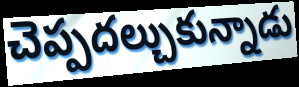
చెప్పదల్చుకున్నాడు